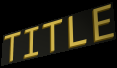
TITLE